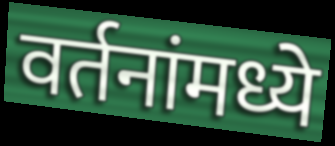
वर्तनांमध्ये